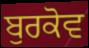
ਬੁਰਕੋਵ